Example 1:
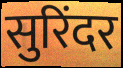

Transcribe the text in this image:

सुरिंदर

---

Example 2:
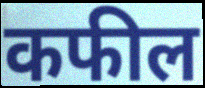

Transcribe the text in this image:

कफील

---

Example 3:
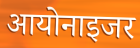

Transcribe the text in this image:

आयोनाइजर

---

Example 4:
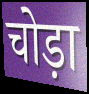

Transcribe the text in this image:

चोड़ा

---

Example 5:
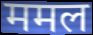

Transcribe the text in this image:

ममल